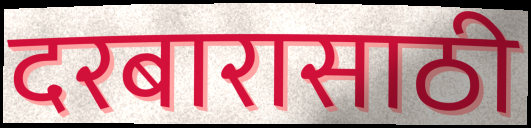
दरबारासाठी